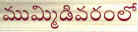
ముమ్మిడివరంలో